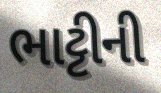
ભાટ્ટીની